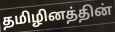
தமிழினத்தின்